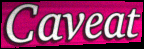
Caveat